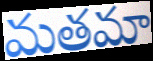
మతమా